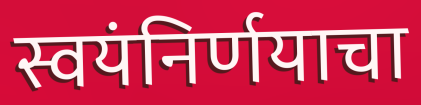
स्वयंनिर्णयाचा